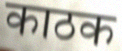
काठक